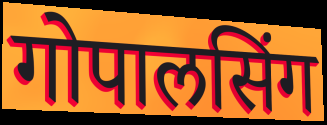
गोपालसिंग